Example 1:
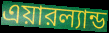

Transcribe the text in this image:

এয়ারল্যান্ড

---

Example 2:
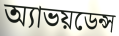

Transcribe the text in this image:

অ্যাভয়ডেন্স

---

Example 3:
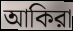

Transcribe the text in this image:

আকিরা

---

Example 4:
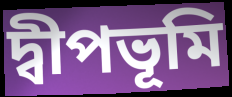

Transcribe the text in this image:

দ্বীপভূমি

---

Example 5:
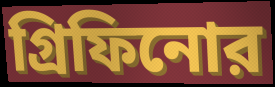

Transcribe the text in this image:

গ্রিফিনোর